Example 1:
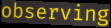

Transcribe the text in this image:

observing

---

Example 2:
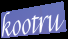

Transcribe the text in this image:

kootru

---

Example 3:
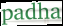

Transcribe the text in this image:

padha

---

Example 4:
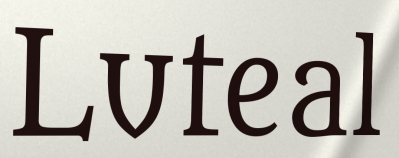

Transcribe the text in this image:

Luteal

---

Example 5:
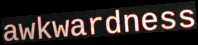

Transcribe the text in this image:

awkwardness